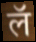
लॅ